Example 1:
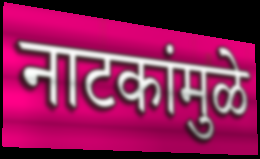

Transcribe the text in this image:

नाटकांमुळे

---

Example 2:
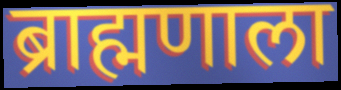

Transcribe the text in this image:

ब्राह्मणाला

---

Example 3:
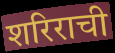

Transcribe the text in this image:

शरिराची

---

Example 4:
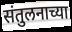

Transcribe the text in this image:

संतुलनाच्या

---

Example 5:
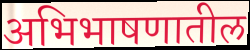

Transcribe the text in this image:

अभिभाषणातील